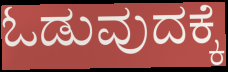
ಓಡುವುದಕ್ಕೆ